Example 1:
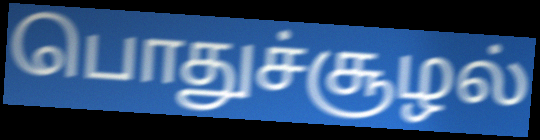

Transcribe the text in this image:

பொதுச்சூழல்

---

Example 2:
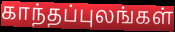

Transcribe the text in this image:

காந்தப்புலங்கள்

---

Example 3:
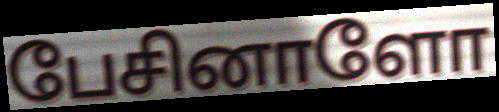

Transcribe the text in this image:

பேசினாளோ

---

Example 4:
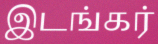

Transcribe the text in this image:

இடங்கர்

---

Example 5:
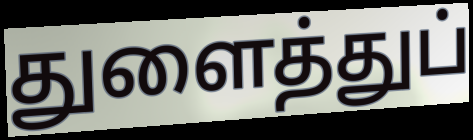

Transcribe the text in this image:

துளைத்துப்